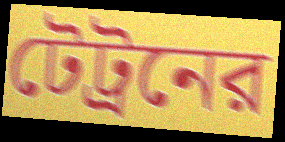
টেট্রনের